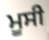
ਮੂਸੀ